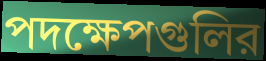
পদক্ষেপগুলির